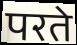
परते